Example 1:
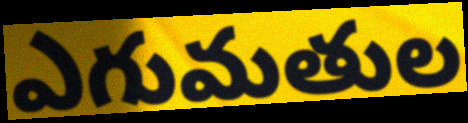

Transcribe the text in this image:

ఎగుమతుల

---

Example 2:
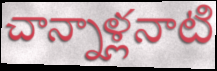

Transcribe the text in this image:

చాన్నాళ్లనాటి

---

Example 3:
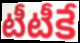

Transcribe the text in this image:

టీటీకే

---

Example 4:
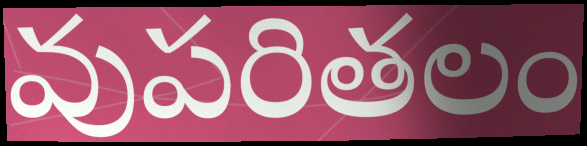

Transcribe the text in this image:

వుపరితలం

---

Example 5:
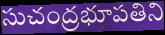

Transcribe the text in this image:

సుచంద్రభూపతిని